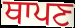
ਥਾਪਣ